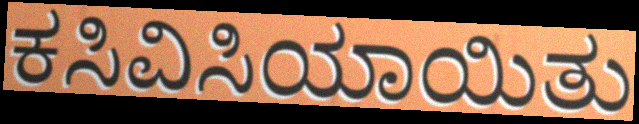
ಕಸಿವಿಸಿಯಾಯಿತು